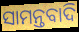
ସାମନ୍ତବାଦି